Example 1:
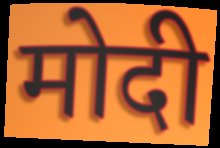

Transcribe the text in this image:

मोदी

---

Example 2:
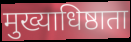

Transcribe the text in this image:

मुख्याधिष्ठाता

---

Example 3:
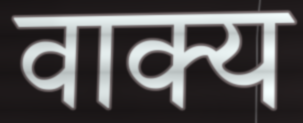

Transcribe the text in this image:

वाक्य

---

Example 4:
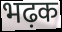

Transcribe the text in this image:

भढ़क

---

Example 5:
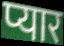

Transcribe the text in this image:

प्‍यार